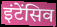
इंटेंसिव